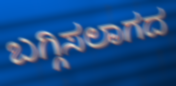
ಬಗ್ಗಿಸಲಾಗದ